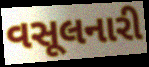
વસૂલનારી